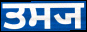
ਤਸ੍ਯ